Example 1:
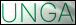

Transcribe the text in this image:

UNGA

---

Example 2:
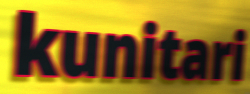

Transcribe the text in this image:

kunitari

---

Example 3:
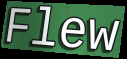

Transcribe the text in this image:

Flew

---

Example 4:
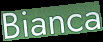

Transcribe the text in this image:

Bianca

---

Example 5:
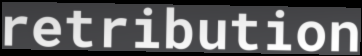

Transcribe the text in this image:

retribution